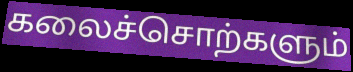
கலைச்சொற்களும்